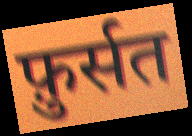
फ़ुर्सत